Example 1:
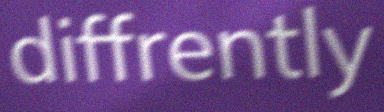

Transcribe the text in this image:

diffrently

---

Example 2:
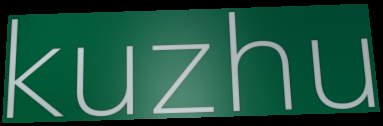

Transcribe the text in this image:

kuzhu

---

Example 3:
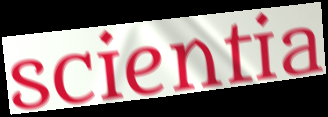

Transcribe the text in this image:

scientia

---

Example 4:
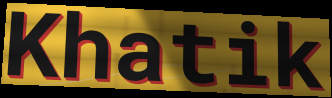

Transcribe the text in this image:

Khatik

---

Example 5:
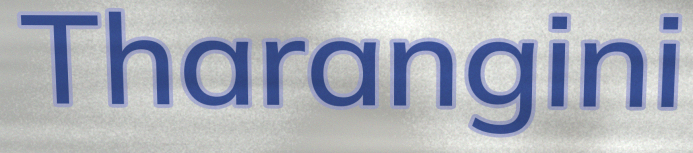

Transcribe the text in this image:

Tharangini